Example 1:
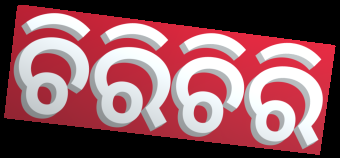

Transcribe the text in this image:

ଚିରିଚିରି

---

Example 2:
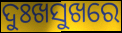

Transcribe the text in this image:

ଦୁଃଖସୁଖରେ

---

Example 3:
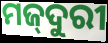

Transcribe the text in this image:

ମଜ୍‌ଦୁରୀ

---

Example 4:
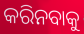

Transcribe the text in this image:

କରିନବାକୁ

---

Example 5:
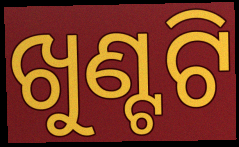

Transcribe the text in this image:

ଖୁଣ୍ଟଟି